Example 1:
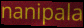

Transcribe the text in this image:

nanipala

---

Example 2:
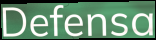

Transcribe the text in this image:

Defensa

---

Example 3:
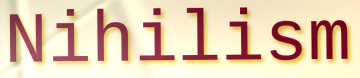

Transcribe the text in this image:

Nihilism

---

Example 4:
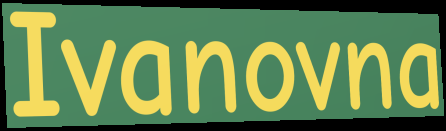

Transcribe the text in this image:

Ivanovna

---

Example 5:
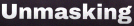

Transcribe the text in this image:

Unmasking